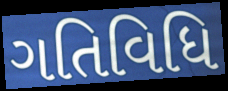
ગતિવિધિ